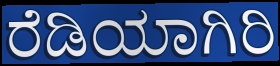
ರೆಡಿಯಾಗಿರಿ